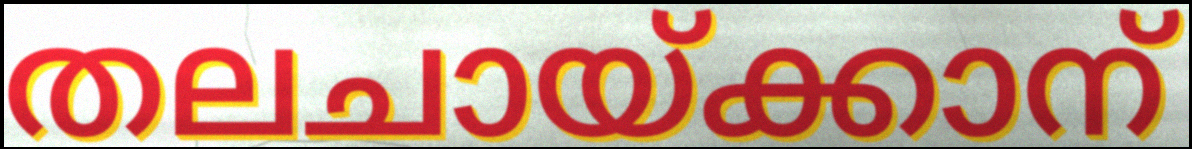
തലചായ്ക്കാന്